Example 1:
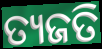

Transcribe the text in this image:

ତ୍ୟଜତି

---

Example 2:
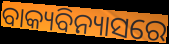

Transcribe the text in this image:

ବାକ୍ୟବିନ୍ୟାସରେ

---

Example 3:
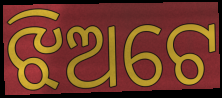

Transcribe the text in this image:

ଝିଅଟେ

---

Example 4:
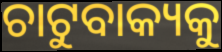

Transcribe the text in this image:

ଚାଟୁବାକ୍ୟକୁ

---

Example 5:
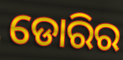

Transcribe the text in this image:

ଡୋରିର